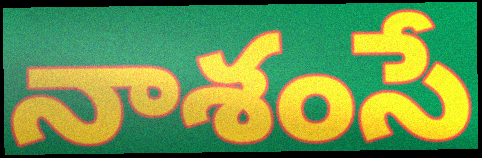
నాశంసే